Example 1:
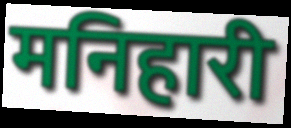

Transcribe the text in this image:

मनिहारी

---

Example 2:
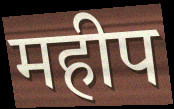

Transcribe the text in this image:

महीप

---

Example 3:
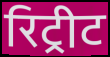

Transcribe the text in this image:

रिट्रीट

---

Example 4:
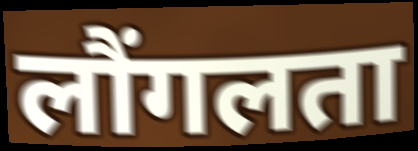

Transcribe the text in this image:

लौंगलता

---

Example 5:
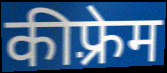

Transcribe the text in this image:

कीफ़्रेम